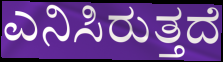
ಎನಿಸಿರುತ್ತದೆ